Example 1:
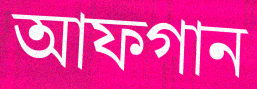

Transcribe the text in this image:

আফগান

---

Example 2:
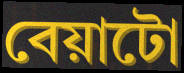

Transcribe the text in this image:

বেয়াটো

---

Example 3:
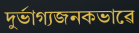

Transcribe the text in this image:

দুৰ্ভাগ্যজনকভাৱে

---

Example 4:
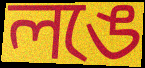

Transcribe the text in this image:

লঙে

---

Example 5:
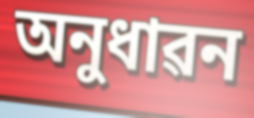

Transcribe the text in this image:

অনুধাৱন